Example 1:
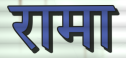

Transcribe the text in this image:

रामा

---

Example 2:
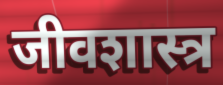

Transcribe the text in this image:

जीवशास्त्र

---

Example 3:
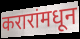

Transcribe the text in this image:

करारांमधून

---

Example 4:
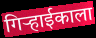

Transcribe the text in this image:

गिऱ्हाईकाला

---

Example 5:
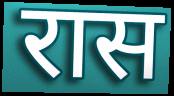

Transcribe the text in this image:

रास